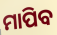
ମାପିବ